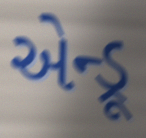
એન્ડ્રૂ